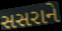
સસરાને